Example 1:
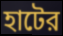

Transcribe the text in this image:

হাটের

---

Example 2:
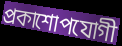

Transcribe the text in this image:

প্রকাশোপযোগী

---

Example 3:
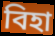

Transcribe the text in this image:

বিহা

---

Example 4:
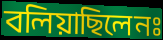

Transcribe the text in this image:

বলিয়াছিলেনঃ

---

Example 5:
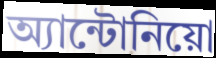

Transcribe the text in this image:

অ্যান্টোনিয়ো